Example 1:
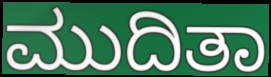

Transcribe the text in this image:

ಮುದಿತಾ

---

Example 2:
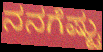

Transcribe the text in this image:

ನನಗೆಷ್ಟು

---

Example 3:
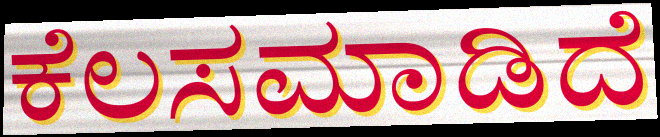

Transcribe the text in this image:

ಕೆಲಸಮಾಡಿದೆ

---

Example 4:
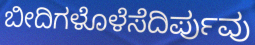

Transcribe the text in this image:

ಬೀದಿಗಳೊಳೆಸೆದಿರ್ಪುವು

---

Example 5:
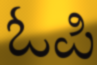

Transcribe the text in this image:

ಓಪಿ